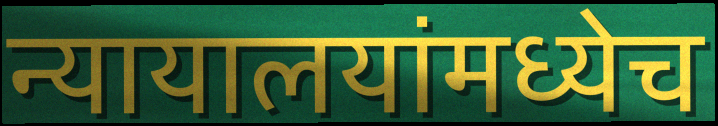
न्यायालयांमध्येच